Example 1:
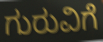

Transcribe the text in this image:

ಗುರುವಿಗೆ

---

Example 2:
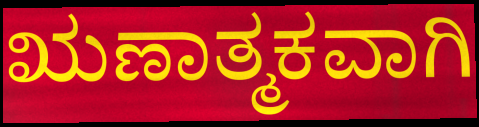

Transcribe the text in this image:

ಋಣಾತ್ಮಕವಾಗಿ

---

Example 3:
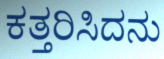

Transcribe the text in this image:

ಕತ್ತರಿಸಿದನು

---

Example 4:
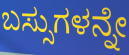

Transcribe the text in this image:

ಬಸ್ಸುಗಳನ್ನೇ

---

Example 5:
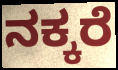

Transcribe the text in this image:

ನಕ್ಕರೆ